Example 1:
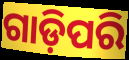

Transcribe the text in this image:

ଗାଡ଼ିପରି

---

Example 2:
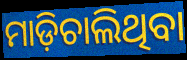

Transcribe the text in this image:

ମାଡ଼ିଚାଲିଥିବା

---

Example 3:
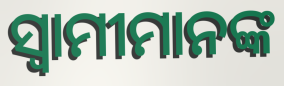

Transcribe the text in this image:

ସ୍ବାମୀମାନଙ୍କ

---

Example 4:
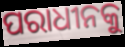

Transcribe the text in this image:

ପରାଧୀନକୁ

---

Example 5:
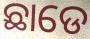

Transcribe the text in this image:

ଛାଡେ